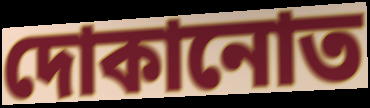
দোকানোত